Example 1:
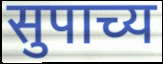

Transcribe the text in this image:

सुपाच्य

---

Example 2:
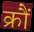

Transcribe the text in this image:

क्रौं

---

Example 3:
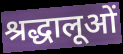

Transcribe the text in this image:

श्रद्धालूओं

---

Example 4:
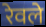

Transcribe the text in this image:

रेवले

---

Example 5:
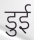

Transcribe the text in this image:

डुई